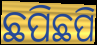
ଛପିଛପି